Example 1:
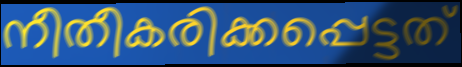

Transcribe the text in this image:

നീതീകരിക്കപ്പെട്ടത്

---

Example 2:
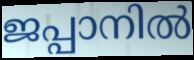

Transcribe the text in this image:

ജപ്പാനിൽ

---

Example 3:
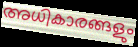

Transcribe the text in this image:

അധികാരങ്ങളും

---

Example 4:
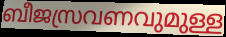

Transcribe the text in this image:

ബീജസ്രവണവുമുള്ള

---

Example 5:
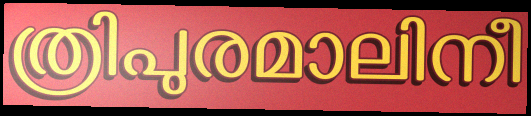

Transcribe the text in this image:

ത്രിപുരമാലിനീ